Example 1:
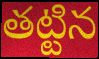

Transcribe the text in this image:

తట్టిన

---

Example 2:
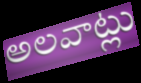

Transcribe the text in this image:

అలవాట్లు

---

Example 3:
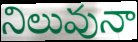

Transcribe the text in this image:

నిలువునా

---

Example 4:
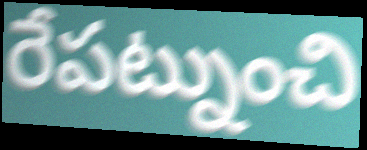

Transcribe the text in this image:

రేపట్నుంచి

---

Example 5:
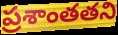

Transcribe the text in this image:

ప్రశాంతతని